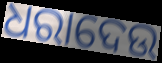
ଧରାଦେଉ